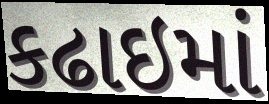
કઢાઇમાં